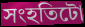
সংহতিটো